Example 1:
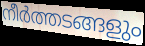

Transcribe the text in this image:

നീർത്തടങ്ങളും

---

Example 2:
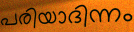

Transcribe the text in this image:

പരിയാദിന്നം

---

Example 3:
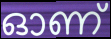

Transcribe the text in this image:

ഓണ്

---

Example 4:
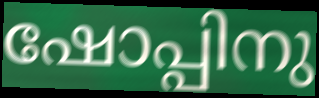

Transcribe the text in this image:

ഷോപ്പിനു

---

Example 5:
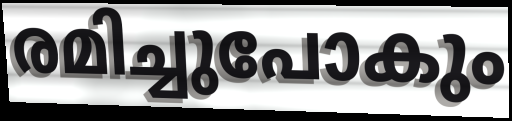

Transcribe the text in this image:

രമിച്ചുപോകും